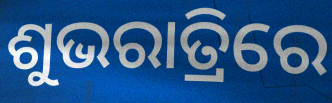
ଶୁଭରାତ୍ରିରେ